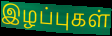
இழப்புகள்